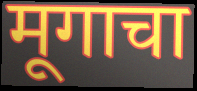
मूगाचा